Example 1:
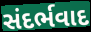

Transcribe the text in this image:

સંદર્ભવાદ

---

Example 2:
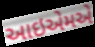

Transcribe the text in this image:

આઇએમએ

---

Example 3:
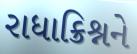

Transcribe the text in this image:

રાધાક્રિશ્નને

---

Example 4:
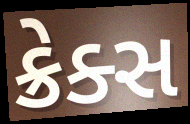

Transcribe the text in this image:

ક્રેક્સ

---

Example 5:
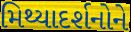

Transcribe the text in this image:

મિથ્યાદર્શનોને